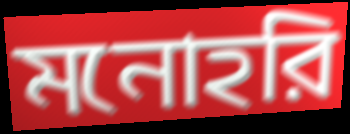
মনোহরি